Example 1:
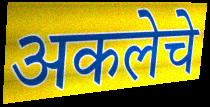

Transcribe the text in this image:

अकलेचे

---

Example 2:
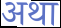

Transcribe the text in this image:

अथा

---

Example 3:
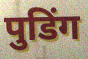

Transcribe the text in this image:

पुडिंग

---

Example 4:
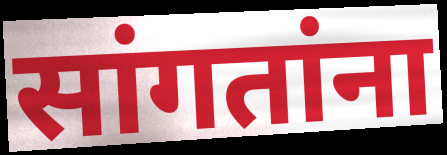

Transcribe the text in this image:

सांगतांना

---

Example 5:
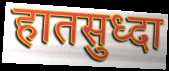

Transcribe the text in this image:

हातसुध्दा